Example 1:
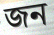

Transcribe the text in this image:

জন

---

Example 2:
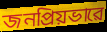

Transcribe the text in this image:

জনপ্ৰিয়ভাৱে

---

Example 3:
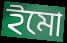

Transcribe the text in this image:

ইমো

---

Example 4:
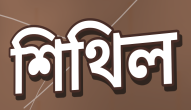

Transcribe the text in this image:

শিথিল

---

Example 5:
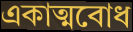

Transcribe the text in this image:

একাত্মবোধ